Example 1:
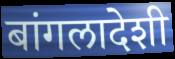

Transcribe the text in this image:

बांगलादेशी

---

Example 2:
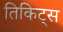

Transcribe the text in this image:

तिकिट्स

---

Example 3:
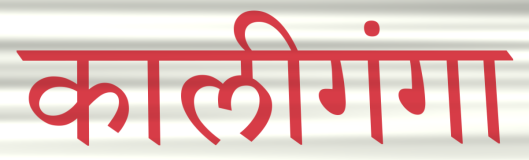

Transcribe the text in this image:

कालीगंगा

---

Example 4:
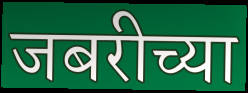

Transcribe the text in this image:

जबरीच्या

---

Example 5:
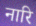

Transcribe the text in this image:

नारि